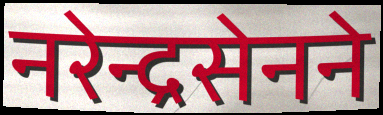
नरेन्द्रसेनने